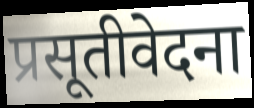
प्रसूतीवेदना